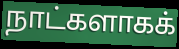
நாட்களாகக்